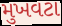
મુખવટા